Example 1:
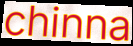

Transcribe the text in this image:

chinna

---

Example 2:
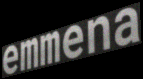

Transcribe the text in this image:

emmena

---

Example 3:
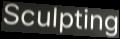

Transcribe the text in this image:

Sculpting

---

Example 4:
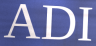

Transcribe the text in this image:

ADI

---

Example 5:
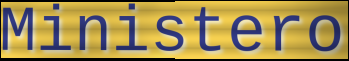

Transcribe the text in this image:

Ministero